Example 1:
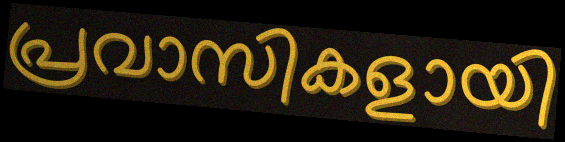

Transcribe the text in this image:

പ്രവാസികളായി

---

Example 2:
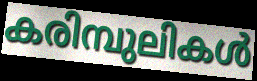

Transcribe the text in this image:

കരിമ്പുലികൾ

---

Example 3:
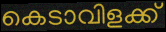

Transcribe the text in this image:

കെടാവിളക്ക്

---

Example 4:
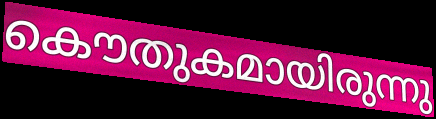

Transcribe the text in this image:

കൌതുകമായിരുന്നു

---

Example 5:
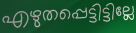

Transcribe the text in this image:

എഴുതപ്പെട്ടിട്ടില്ലേ